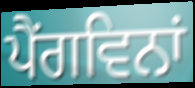
ਪੈਂਗਵਿਨਾਂ